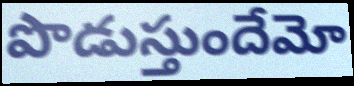
పొడుస్తుందేమో